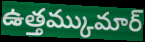
ఉత్తమ్కుమార్